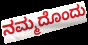
ನಮ್ಮದೊಂದು